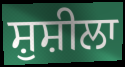
ਸ਼ੁਸ਼ੀਲਾ